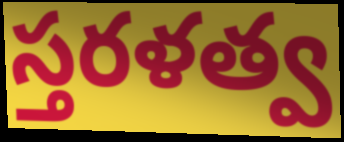
స్తరళత్వ